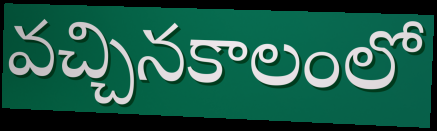
వచ్చినకాలంలో